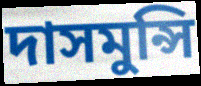
দাসমুন্সি